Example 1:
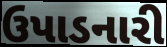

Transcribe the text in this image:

ઉપાડનારી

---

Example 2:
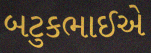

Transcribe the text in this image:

બટુકભાઈએ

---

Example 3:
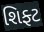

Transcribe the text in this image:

શિફ્ટ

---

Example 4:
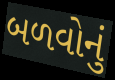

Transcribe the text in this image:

બળવોનું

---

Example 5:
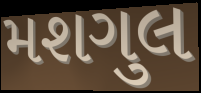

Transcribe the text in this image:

મશગુલ